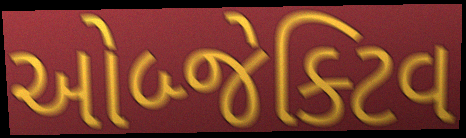
ઓબ્જેક્ટિવ